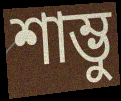
শাম্ভু